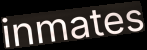
inmates